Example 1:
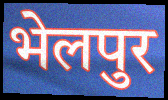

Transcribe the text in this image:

भेलपुर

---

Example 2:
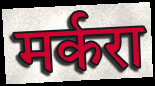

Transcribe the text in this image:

मर्करा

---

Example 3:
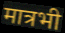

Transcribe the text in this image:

मात्रभी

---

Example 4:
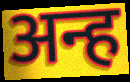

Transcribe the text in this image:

अन्ह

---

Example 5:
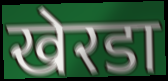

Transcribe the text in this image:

खेरडा